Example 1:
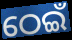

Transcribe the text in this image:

ଠେଇଁ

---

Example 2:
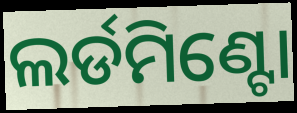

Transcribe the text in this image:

ଲର୍ଡମିଣ୍ଟୋ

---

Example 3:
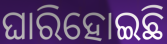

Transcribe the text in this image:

ଘାରିହୋଇଛି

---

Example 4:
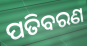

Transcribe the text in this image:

ପତିବରଣ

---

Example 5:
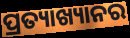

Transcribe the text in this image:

ପ୍ରତ୍ୟାଖ୍ୟାନର